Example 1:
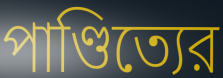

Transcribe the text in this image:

পাণ্ডিত্যের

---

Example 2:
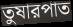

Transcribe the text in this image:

তুষারপাত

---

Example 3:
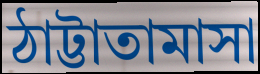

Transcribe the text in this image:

ঠাট্টাতামাসা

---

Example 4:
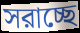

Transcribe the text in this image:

সরাচ্ছে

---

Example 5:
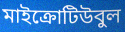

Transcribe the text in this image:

মাইক্রোটিউবুল